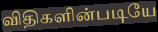
விதிகளின்படியே